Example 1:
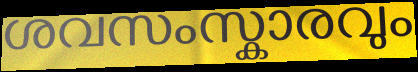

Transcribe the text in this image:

ശവസംസ്കാരവും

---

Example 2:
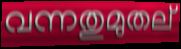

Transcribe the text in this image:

വന്നതുമുതല്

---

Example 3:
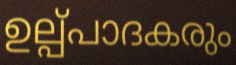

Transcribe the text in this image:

ഉല്പ്പാദകരും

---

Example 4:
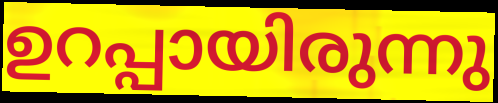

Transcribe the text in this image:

ഉറപ്പായിരുന്നു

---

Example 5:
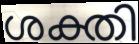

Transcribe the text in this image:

ശക്തി